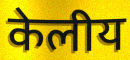
केलीय